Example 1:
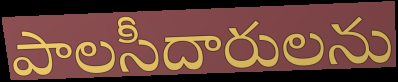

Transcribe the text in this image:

పాలసీదారులను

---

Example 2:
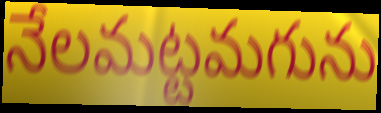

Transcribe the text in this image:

నేలమట్టమగును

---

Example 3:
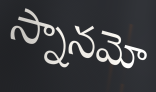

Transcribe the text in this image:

స్నానమో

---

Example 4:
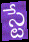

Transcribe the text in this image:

స్టే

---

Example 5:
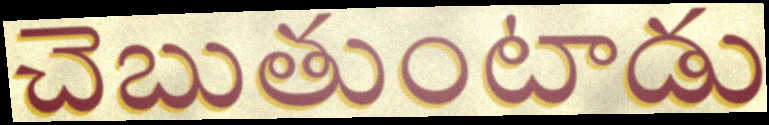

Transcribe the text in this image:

చెబుతుంటాడు